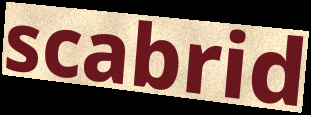
scabrid